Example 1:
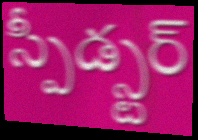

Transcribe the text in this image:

స్పీడ్స్టర్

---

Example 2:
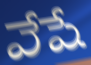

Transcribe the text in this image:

వేషే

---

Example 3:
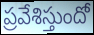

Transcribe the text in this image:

ప్రవేశిస్తుందో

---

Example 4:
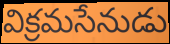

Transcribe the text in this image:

విక్రమసేనుడు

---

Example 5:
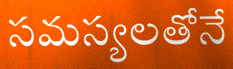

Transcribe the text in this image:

సమస్యలతోనే